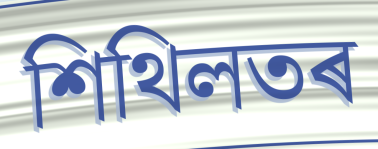
শিথিলতৰ